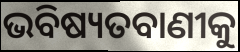
ଭବିଷ୍ୟତବାଣୀକୁ